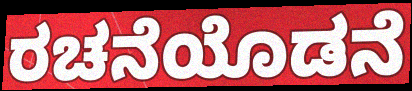
ರಚನೆಯೊಡನೆ